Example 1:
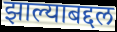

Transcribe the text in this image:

झाल्याबद्दल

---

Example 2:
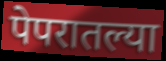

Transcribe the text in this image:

पेपरातल्या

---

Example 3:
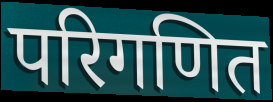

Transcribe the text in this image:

परिगणित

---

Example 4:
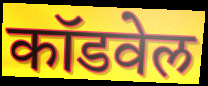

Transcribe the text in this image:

कॉडवेल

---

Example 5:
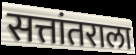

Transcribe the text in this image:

सत्तांतराला